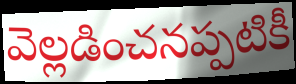
వెల్లడించనప్పటికీ